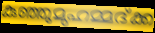
കുഞ്ഞുമുഹമ്മദ്ക്ക